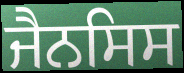
ਜੈਨਸਿਸ